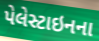
પેલેસ્ટાઇનના